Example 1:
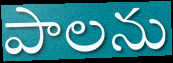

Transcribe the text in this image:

పాలను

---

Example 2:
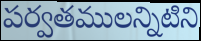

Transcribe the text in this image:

పర్వతములన్నిటిని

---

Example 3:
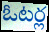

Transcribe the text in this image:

ఓటర్ల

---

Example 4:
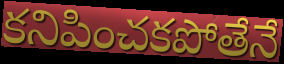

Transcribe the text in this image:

కనిపించకపోతేనే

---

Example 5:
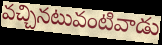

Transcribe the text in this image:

వచ్చినటువంటివాడు